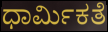
ಧಾರ್ಮಿಕತೆ